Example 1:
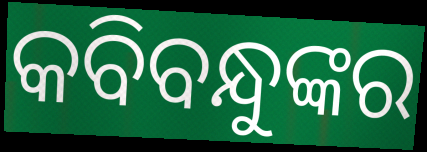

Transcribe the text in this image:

କବିବନ୍ଧୁଙ୍କର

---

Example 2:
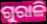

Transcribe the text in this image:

ଗୁରାଳି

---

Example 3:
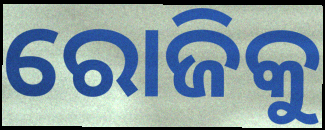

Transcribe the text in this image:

ରୋଜିକୁ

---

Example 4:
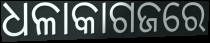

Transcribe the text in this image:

ଧଳାକାଗଜରେ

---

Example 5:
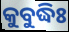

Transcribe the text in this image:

କୁବୁଦ୍ଧିଃ